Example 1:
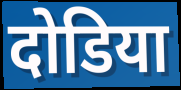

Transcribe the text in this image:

दोडिया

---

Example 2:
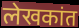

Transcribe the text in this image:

लेखकांत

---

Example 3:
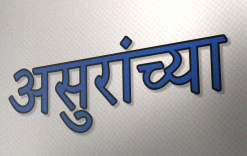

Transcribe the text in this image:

असुरांच्या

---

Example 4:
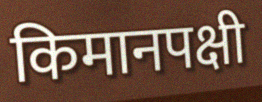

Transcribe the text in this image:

किमानपक्षी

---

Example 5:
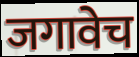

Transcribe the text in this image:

जगावेच